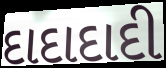
દાદાદાદી